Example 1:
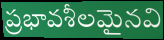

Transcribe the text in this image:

ప్రభావశీలమైనవి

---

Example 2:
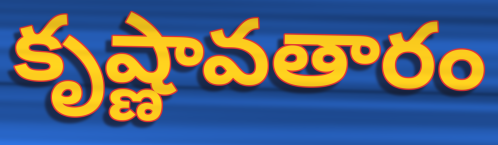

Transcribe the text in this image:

కృష్ణావతారం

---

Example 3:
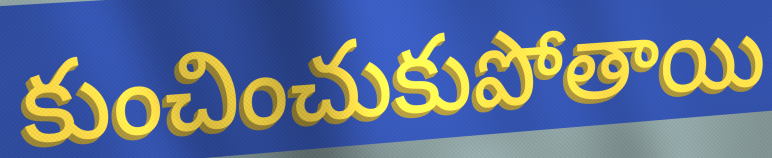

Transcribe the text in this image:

కుంచించుకుపోతాయి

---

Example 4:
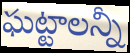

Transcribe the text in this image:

ఘట్టాలన్నీ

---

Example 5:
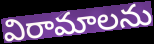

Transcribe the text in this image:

విరామాలను